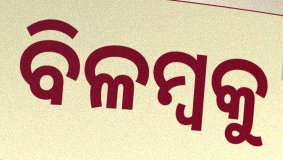
ବିଳମ୍ୱକୁ